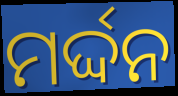
ମର୍ଦ୍ଦନ